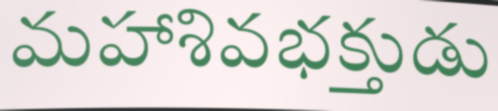
మహాశివభక్తుడు